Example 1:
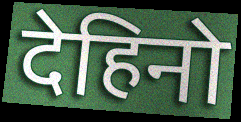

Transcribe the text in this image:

देहिनो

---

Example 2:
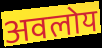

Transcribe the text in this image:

अवलोय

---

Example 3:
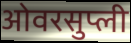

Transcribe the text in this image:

ओवरसुप्ली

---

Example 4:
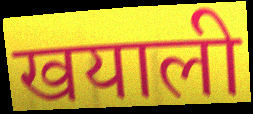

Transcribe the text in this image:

खयाली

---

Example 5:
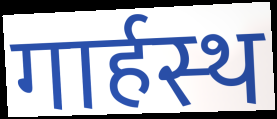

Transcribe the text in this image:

गार्हस्थ